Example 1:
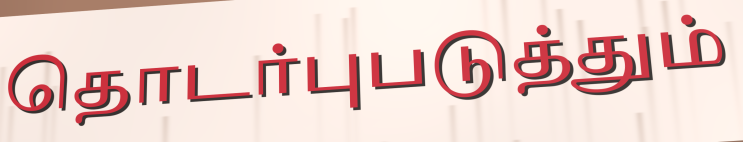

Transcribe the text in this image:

தொடர்புபடுத்தும்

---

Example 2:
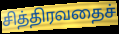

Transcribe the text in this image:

சித்திரவதைச்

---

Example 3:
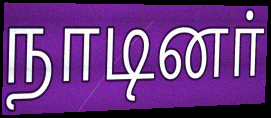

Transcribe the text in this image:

நாடினர்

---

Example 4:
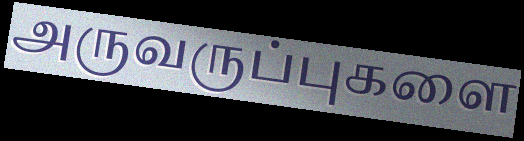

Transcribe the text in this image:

அருவருப்புகளை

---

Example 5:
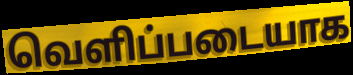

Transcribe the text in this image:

வெளிப்படையாக